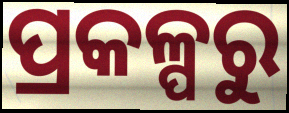
ପ୍ରକଳ୍ପରୁ